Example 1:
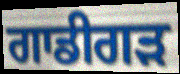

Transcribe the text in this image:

ਗਾਡੀਗੜ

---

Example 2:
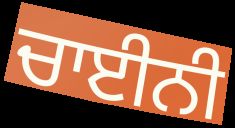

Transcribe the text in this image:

ਚਾਈਨੀ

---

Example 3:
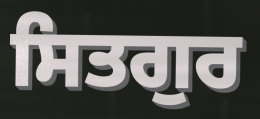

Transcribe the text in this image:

ਸਿਤਗੁਰ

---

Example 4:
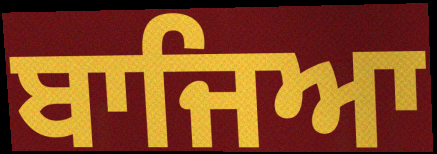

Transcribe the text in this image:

ਬਾਜਿਆ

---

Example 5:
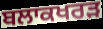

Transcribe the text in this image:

ਬਲਾਕਖਰੜ